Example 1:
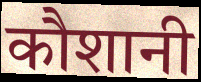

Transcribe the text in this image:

कौशानी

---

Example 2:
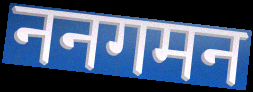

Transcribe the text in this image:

ननगमन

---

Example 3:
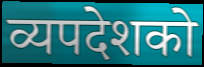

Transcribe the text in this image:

व्यपदेशको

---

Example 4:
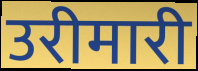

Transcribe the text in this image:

उरीमारी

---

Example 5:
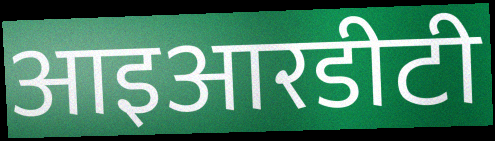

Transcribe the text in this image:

आइआरडीटी